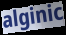
alginic